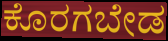
ಕೊರಗಬೇಡ